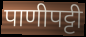
पाणीपट्टी